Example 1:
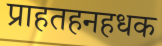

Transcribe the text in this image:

प्राहतहनहधक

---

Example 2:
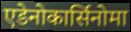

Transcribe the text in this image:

एडेनोकार्सिनोमा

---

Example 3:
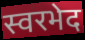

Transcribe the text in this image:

स्वरभेद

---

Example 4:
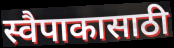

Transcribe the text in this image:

स्वैपाकासाठी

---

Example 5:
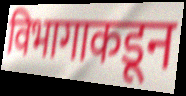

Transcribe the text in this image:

विभागाकडून